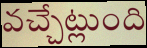
వచ్చేట్లుంది